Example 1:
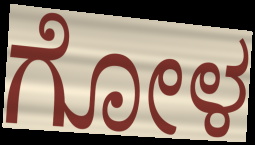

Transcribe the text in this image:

ಗೋಳ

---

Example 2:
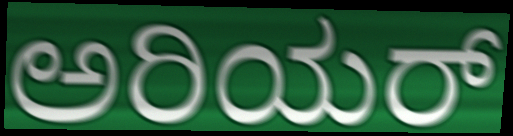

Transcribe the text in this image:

ಅರಿಯರ್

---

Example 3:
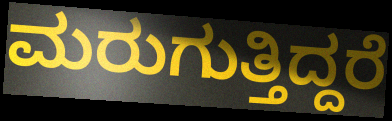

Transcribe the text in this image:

ಮರುಗುತ್ತಿದ್ದರೆ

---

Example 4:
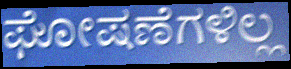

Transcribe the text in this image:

ಘೋಷಣೆಗಳಿಲ್ಲ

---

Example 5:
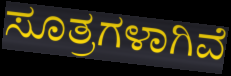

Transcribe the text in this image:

ಸೂತ್ರಗಳಾಗಿವೆ